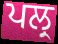
ਪਲ੍ਰ